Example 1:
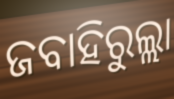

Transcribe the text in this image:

ଜବାହିରୁଲ୍ଲା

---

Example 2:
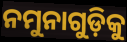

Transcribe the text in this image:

ନମୁନାଗୁଡ଼ିକୁ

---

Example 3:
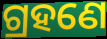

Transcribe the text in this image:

ଗ୍ରହଣେ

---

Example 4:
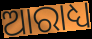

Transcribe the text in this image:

ଆରାଧ୍ୟ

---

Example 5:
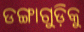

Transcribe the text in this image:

ଡଙ୍ଗାଗୁଡ଼ିକୁ